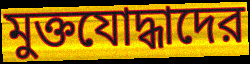
মুক্তযোদ্ধাদের